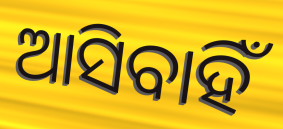
ଆସିବାହିଁ